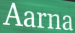
Aarna